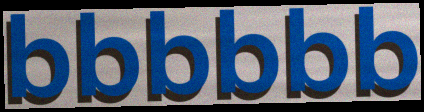
bbbbbb